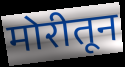
मोरीतून